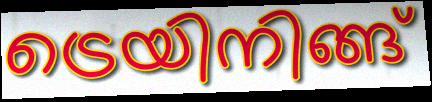
ട്രെയിനിങ്ങ്